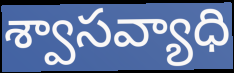
శ్వాసవ్యాధి